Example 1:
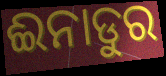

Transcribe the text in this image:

ଈନାଡୁର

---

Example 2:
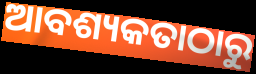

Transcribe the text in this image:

ଆବଶ୍ୟକତାଠାରୁ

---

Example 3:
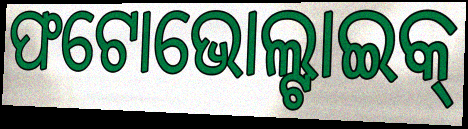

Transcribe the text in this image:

ଫଟୋଭୋଲ୍ଟାଇକ୍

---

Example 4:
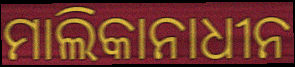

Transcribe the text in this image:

ମାଲିକାନାଧୀନ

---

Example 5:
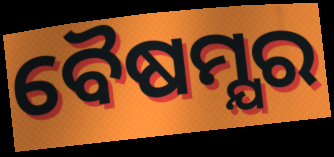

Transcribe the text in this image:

ବୈଷମ୍ଯର